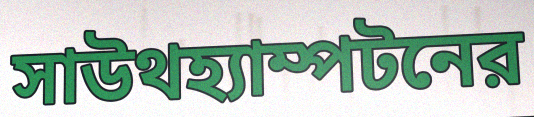
সাউথহ্যাম্পটনের